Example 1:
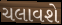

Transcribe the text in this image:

ચલાવશે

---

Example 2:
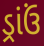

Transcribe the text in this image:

ડ્રાંઉં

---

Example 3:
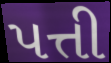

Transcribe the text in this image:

પત્તી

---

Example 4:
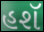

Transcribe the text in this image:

હશૅ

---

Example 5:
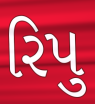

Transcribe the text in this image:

રિપુ